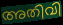
അതിവി